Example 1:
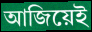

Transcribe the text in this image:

আজিয়েই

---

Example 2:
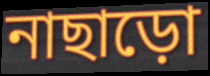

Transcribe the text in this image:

নাছাড়ো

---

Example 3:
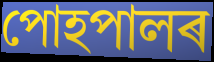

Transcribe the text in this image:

পোহপালৰ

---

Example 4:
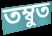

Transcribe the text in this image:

তম্বুত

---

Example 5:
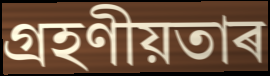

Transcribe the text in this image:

গ্ৰহণীয়তাৰ